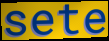
sete